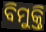
ବିମୁକ୍ତି